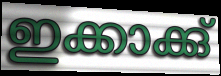
ഇക്കാക്കു്